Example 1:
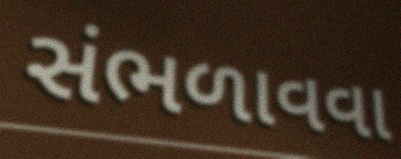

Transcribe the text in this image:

સંભળાવવા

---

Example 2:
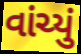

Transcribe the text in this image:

વાંચ્યું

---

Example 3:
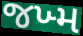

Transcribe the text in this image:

જખ્મ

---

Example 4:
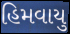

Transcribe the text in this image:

હિમવાયુ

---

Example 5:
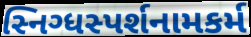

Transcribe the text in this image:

સ્નિગ્ધસ્પર્શનામકર્મ